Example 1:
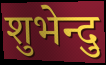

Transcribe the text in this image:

शुभेन्दु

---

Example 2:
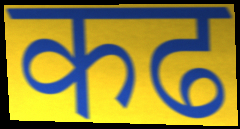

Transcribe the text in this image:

कढ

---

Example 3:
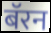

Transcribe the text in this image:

बॅरन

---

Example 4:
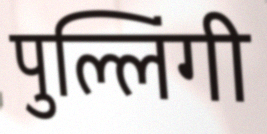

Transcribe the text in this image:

पुल्लिंगी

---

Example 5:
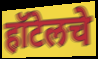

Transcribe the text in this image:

हॉटेलचे